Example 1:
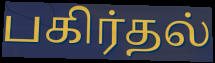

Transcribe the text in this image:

பகிர்தல்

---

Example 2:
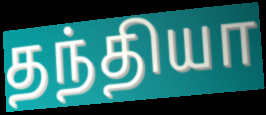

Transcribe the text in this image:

தந்தியா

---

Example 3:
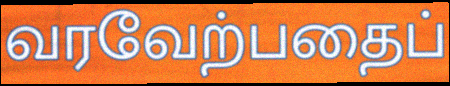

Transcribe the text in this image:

வரவேற்பதைப்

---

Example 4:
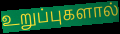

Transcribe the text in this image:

உறுப்புகளால்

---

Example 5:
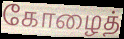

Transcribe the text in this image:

கோழைத்